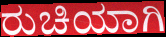
ರುಚಿಯಾಗಿ